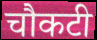
चौकटी